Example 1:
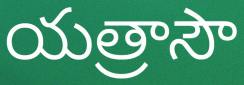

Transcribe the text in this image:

యత్రాసౌ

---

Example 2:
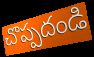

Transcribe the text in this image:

చొప్పదండి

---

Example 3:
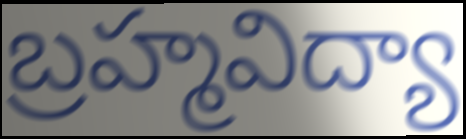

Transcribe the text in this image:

బ్రహ్మవిద్యా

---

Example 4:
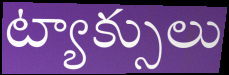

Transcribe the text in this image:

ట్యాక్సులు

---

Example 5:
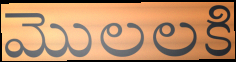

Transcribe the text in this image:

మొలలకి